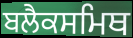
ਬਲੈਕਸਮਿਥ